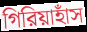
গিরিয়াহাঁস